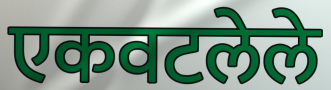
एकवटलेले